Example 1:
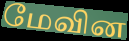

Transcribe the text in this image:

மேவின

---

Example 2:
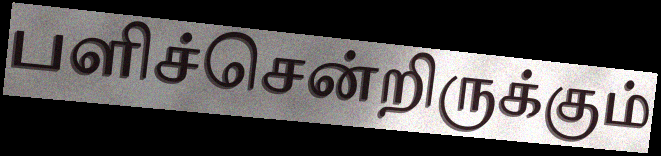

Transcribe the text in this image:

பளிச்சென்றிருக்கும்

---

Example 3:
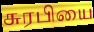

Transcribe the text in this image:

சுரபியை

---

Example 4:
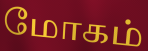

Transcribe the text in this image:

மோகம்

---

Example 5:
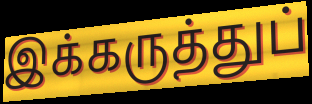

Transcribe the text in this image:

இக்கருத்துப்